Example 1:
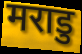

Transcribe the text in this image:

मराडु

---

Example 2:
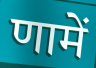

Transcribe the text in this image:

णामें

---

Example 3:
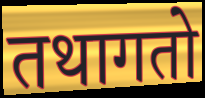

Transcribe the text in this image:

तथागतो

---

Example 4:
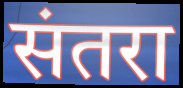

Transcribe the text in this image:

संतरा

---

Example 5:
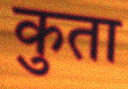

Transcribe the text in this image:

कुता